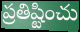
ప్రతిష్టించు